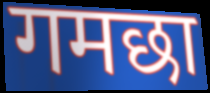
गमछा